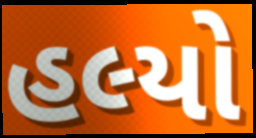
હલ્યો